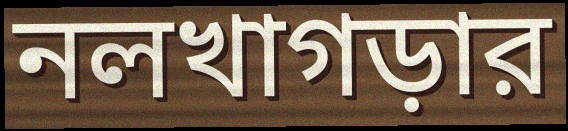
নলখাগড়ার